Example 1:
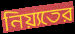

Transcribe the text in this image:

নিয়্যতের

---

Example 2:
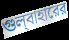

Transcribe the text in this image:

গুল্‌বাহারের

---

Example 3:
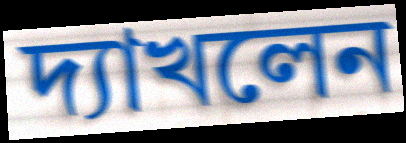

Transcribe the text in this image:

দ্যাখলেন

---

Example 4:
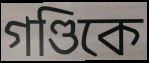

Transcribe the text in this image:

গণ্ডিকে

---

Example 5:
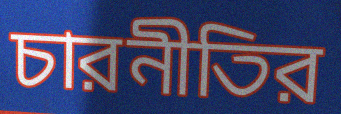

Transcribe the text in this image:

চারনীতির